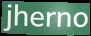
jherno